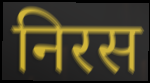
निरस